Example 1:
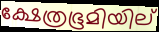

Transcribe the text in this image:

ക്ഷേത്രഭൂമിയില്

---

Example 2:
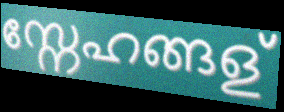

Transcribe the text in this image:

സ്നേഹങ്ങള്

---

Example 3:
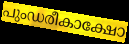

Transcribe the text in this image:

പുംഡരീകാക്ഷോ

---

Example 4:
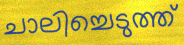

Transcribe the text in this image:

ചാലിച്ചെടുത്ത്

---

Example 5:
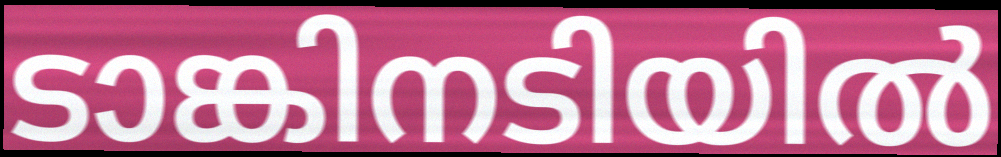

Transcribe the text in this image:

ടാങ്കിനടിയിൽ